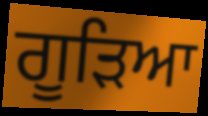
ਗੂੜਿਆ